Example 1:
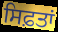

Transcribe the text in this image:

ਸਿਫ਼ਤਾਂ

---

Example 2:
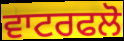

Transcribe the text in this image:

ਵਾਟਰਫਲੋ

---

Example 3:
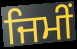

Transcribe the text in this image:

ਜਿਮੀਂ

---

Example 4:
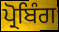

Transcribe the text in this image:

ਪ੍ਰੋਬਿੰਗ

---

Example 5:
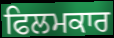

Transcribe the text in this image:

ਫਿਲਮਕਾਰ